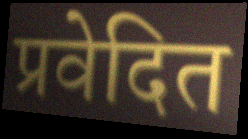
प्रवेदित